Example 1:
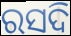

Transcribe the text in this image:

ରସଦି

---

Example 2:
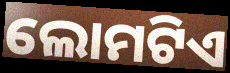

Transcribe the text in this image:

ଲୋମଟିଏ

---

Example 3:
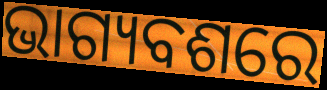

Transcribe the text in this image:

ଭାଗ୍ୟବଶରେ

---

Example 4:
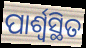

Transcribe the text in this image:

ପାର୍ଶ୍ୱସ୍ଥିତ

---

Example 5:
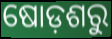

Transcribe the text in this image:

ଷୋଡ଼ଶରୁ